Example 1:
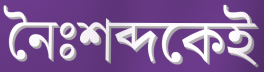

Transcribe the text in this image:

নৈঃশব্দকেই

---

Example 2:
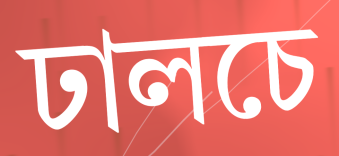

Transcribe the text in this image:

ঢালচে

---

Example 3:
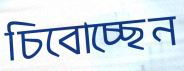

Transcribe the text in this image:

চিবোচ্ছেন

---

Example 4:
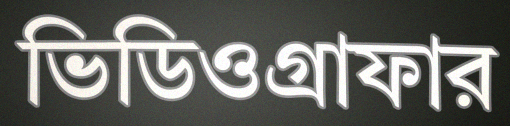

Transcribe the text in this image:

ভিডিওগ্রাফার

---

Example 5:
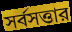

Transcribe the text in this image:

সর্বসত্তার